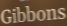
Gibbons